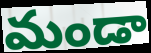
మండా